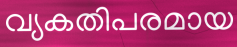
വ്യകതിപരമായ